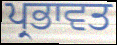
ਪ੍ਰਭਾਵਤ